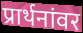
प्रार्थनांवर